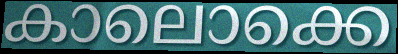
കാലൊക്കെ